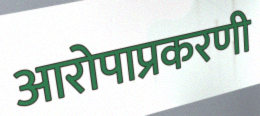
आरोपाप्रकरणी